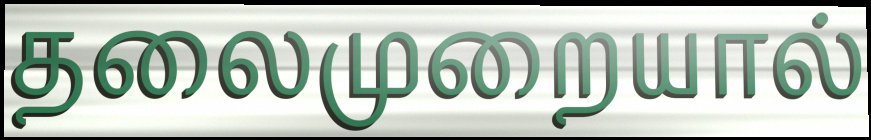
தலைமுறையால்